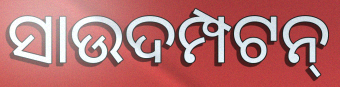
ସାଉଦମ୍ପଟନ୍